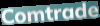
Comtrade